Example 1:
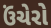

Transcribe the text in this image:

ઉંચેરો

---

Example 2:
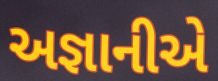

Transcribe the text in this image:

અજ્ઞાનીએ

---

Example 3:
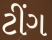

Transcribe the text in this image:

ટીંગ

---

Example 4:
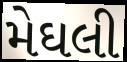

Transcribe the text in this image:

મેઘલી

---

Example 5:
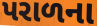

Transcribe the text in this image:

પરાળના